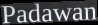
Padawan